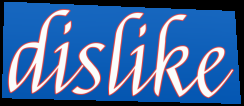
dislike